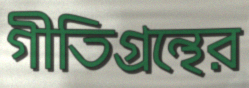
গীতিগ্রন্থের